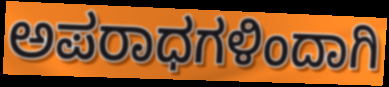
ಅಪರಾಧಗಳಿಂದಾಗಿ